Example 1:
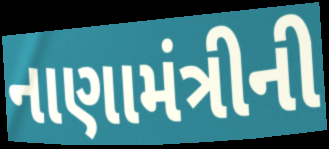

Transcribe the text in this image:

નાણામંત્રીની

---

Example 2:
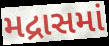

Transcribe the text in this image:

મદ્રાસમાં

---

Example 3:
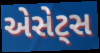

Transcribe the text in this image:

એસેટ્સ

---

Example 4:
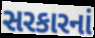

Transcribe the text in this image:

સરકારનાં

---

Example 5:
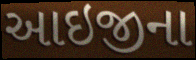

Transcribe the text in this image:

આઇજીના